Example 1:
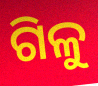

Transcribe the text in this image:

ଗିଳୁ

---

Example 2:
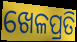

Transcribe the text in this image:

ଖେଳପ୍ରତି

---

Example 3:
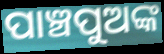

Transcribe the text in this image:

ପାଞ୍ଚପୁଅଙ୍କ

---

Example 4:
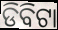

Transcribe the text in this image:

ଡିବିଟା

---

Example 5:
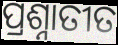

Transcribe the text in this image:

ପ୍ରଶ୍ନାତୀତ